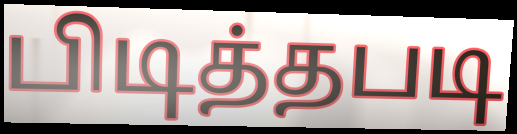
பிடித்தபடி